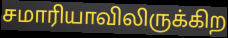
சமாரியாவிலிருக்கிற